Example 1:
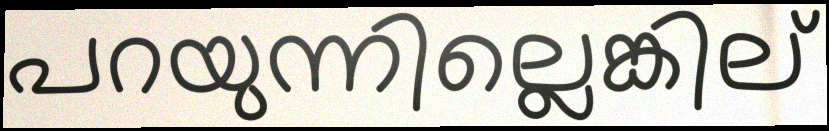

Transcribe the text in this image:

പറയുന്നില്ലെങ്കില്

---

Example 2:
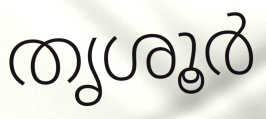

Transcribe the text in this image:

തൃശൂർ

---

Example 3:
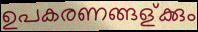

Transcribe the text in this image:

ഉപകരണങ്ങള്ക്കും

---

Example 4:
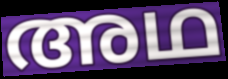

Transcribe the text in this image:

അഥ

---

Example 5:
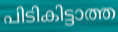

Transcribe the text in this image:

പിടികിട്ടാത്ത